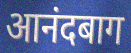
आनंदबाग